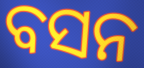
ବସନ